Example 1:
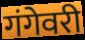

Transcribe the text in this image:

गंगेवरी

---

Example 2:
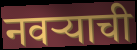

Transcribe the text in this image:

नवर्‍याची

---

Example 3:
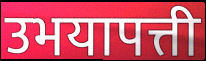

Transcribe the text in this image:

उभयापत्ती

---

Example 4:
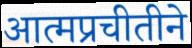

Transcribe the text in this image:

आत्मप्रचीतीने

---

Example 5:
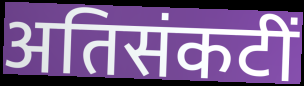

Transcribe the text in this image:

अतिसंकटीं